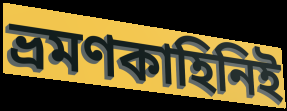
ভ্রমণকাহিনিই